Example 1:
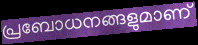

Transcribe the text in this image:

പ്രബോധനങ്ങളുമാണ്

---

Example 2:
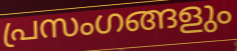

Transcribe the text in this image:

പ്രസംഗങ്ങളും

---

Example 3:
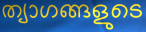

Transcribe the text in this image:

ത്യാഗങ്ങളുടെ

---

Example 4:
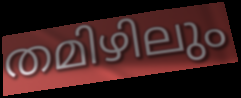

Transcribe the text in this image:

തമിഴിലും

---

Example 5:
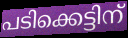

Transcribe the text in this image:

പടിക്കെട്ടിന്